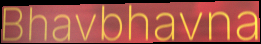
Bhavbhavna